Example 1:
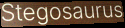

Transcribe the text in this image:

Stegosaurus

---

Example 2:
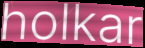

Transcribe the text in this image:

holkar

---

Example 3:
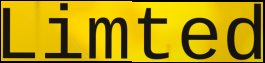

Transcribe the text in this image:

Limted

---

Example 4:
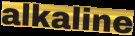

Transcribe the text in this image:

alkaline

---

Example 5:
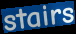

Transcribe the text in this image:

stairs